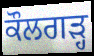
ਕੌਲਗੜ੍ਹ